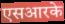
एसआरके